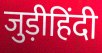
जुड़ीहिंदी